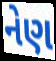
નેણ